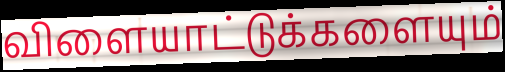
விளையாட்டுக்களையும்